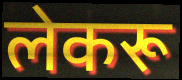
लेकरू